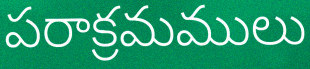
పరాక్రమములు